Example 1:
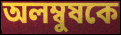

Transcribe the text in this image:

অলম্বুষকে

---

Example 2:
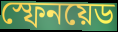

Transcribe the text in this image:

স্ফেনয়েড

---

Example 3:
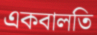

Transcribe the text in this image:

একবালতি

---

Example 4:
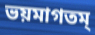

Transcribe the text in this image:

ভয়মাগতম্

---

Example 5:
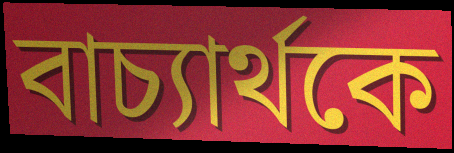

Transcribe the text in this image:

বাচ্যার্থকে